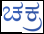
ಚಕ್ರ